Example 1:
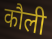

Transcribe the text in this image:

कौली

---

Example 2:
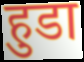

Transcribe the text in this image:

हुडा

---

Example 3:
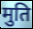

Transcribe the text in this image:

मुति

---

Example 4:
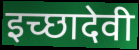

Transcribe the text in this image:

इच्छादेवी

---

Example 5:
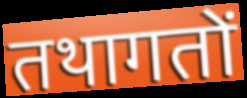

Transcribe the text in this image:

तथागतों